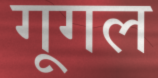
गूगल